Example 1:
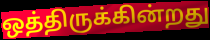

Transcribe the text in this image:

ஒத்திருக்கின்றது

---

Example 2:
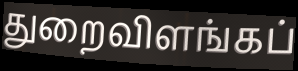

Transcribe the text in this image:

துறைவிளங்கப்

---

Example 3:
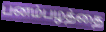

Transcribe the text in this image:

பனம்பழத்தை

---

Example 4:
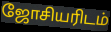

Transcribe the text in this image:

ஜோசியரிடம்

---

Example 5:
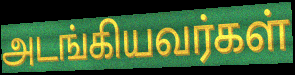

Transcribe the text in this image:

அடங்கியவர்கள்